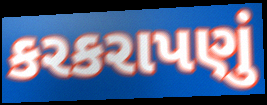
કરકરાપણું